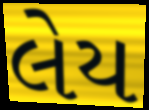
લેય